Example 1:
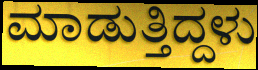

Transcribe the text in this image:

ಮಾಡುತ್ತಿದ್ದಳು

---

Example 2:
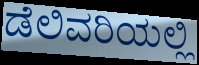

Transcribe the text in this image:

ಡೆಲಿವರಿಯಲ್ಲಿ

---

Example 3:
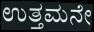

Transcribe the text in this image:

ಉತ್ತಮನೇ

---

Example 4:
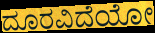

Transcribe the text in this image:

ದೂರವಿದೆಯೋ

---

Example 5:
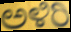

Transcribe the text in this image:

ಅಳಿರಿ